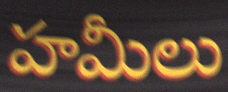
హమీలు